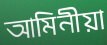
আমিনীয়া